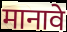
मानावे